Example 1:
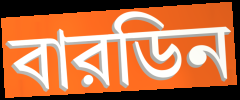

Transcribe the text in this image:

বারডিন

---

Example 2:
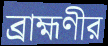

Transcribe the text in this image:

ব্রাহ্মণীর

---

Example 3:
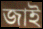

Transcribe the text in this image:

জাই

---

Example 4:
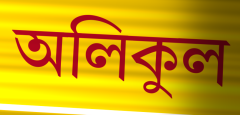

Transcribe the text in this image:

অলিকুল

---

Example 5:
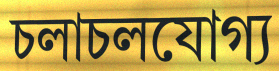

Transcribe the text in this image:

চলাচলযোগ্য